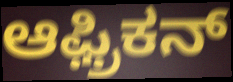
ಆಫ಼್ರಿಕನ್